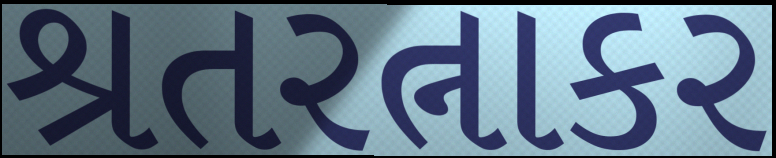
શ્રતરત્નાકર